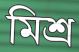
মিশ্র